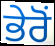
ਭੇਰੋਂ